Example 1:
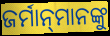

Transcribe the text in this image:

ଜର୍ମାନ୍‌ମାନଙ୍କୁ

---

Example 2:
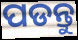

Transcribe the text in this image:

ପଡନ୍ତୁ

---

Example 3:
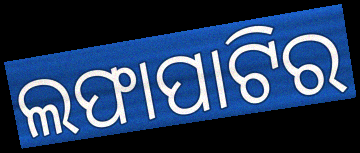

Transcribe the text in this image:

ଲଫାପାଟିର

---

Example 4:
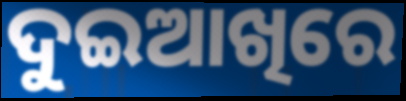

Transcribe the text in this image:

ଦୁଇଆଖିରେ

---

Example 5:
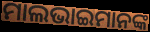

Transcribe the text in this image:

ମାଲଭାଇମାନଙ୍କ